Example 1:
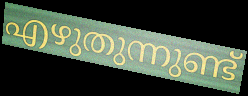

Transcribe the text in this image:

എഴുതുന്നുണ്ട്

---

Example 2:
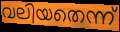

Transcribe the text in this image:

വലിയതെന്ന്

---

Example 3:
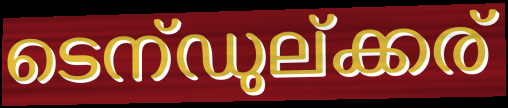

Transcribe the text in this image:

ടെന്ഡുല്ക്കര്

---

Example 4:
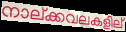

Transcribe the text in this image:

നാല്ക്കവലകളില്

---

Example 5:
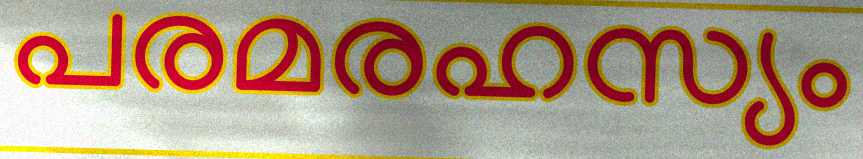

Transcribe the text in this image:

പരമരഹസ്യം